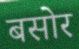
बसोर